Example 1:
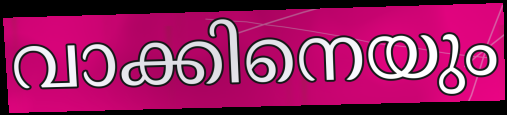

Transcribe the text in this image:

വാക്കിനെയും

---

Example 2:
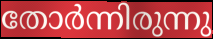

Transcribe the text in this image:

തോർന്നിരുന്നു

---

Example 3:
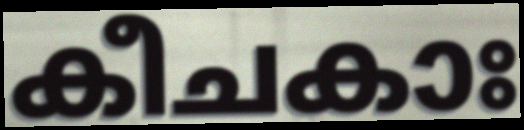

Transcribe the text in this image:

കീചകാഃ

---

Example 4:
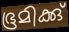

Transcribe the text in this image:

ഭൂമിക്കു്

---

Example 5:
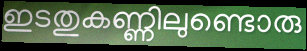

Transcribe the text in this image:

ഇടതുകണ്ണിലുണ്ടൊരു